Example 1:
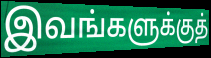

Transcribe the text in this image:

இவங்களுக்குத்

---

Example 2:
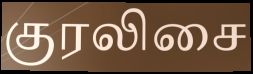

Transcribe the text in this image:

குரலிசை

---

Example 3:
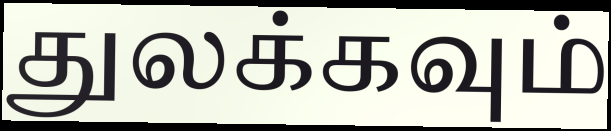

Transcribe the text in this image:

துலக்கவும்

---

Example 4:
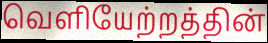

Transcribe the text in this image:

வெளியேற்றத்தின்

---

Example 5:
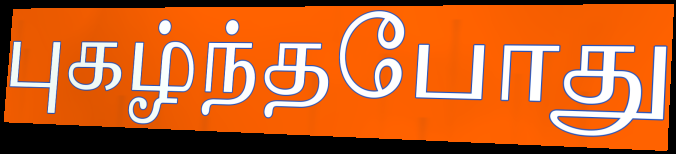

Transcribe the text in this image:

புகழ்ந்தபோது